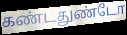
கண்டதுண்டோ